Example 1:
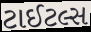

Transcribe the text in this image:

ટાઈટલ્સ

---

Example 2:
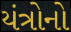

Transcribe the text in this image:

યંત્રોનો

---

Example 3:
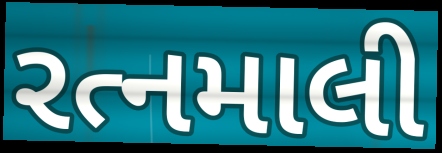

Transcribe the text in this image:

રત્નમાલી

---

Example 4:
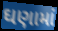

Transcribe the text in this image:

ઘણામાં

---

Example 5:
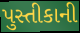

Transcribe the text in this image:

પુસ્તીકાની